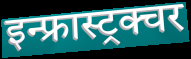
इन्फ्रास्ट्रक्‍चर